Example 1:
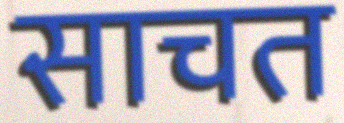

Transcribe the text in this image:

साचत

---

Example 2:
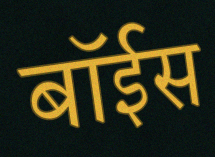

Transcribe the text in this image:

बॉईस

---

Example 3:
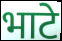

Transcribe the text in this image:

भाटे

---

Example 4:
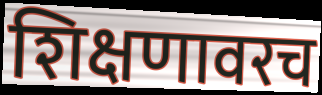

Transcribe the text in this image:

शिक्षणावरच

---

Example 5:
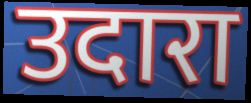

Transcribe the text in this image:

उदारा